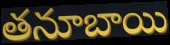
తనూబాయి